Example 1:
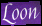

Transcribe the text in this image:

Loon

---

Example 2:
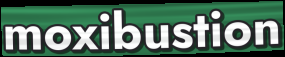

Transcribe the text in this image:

moxibustion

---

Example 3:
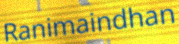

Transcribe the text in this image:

Ranimaindhan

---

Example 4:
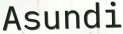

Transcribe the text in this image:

Asundi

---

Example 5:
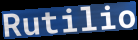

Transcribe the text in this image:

Rutilio